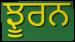
ਝੂਰਨ